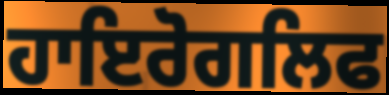
ਹਾਇਰੋਗਲਿਫ